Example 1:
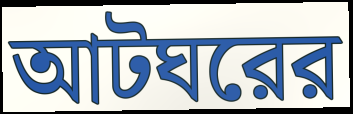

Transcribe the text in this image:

আটঘরের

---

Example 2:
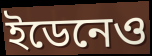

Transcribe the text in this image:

ইডেনেও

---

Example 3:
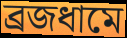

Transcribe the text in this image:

ব্রজধামে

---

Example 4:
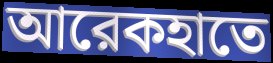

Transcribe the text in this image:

আরেকহাতে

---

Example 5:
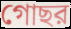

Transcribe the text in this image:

গোছর